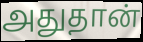
அதுதான்